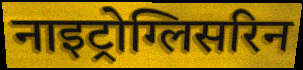
नाइट्रोग्लिसरिन